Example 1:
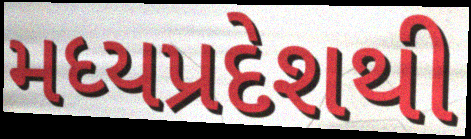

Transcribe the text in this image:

મધ્યપ્રદેશથી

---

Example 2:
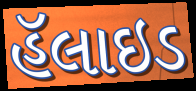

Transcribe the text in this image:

હૅલાઇડ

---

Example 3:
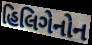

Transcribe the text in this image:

હિલિગેનોન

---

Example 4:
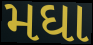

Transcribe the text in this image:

મઘા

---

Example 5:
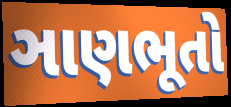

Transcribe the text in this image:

ઞાણભૂતો